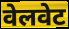
वेलवेट